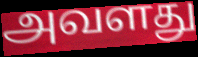
அவளது